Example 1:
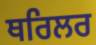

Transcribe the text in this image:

ਥਰਿਲਰ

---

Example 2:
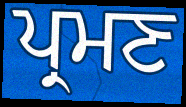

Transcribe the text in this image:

ਪ੍ਰਮਣ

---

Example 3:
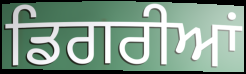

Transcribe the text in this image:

ਡਿਗਰੀਆਂ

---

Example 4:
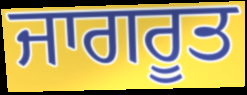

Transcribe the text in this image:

ਜਾਗਰੂਤ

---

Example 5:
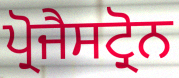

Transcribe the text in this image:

ਪ੍ਰੋਜੈਸਟ੍ਰੋਨ